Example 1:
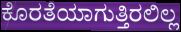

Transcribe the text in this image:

ಕೊರತೆಯಾಗುತ್ತಿರಲಿಲ್ಲ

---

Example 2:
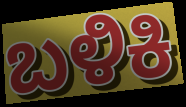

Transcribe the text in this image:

ಬಳಿಕಿ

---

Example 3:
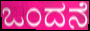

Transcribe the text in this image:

ಒಂದನೆ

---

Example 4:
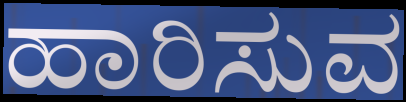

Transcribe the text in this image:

ಹಾರಿಸುವ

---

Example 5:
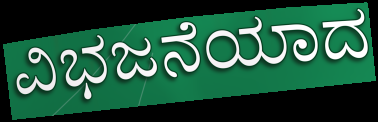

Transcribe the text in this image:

ವಿಭಜನೆಯಾದ